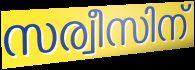
സര്വീസിന്